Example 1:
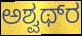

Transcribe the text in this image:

ಅಶ್ವಥ್‌ರ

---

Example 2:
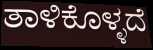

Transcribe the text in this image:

ತಾಳಿಕೊಳ್ಳದೆ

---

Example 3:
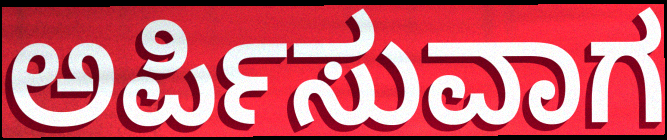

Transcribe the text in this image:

ಅರ್ಪಿಸುವಾಗ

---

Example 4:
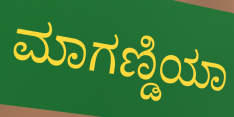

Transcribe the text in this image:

ಮಾಗಣ್ಡಿಯಾ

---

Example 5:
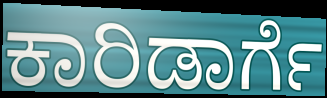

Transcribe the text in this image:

ಕಾರಿಡಾರ್ಗೆ